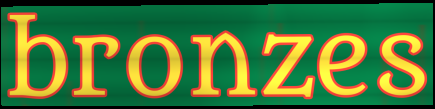
bronzes